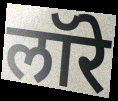
लॉरे